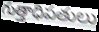
గుత్తాధిపతులు